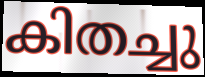
കിതച്ചു